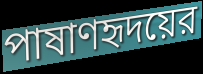
পাষাণহৃদয়ের